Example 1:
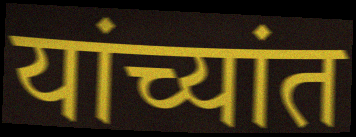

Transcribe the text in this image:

यांच्यांत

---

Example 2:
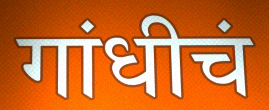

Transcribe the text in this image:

गांधीचं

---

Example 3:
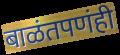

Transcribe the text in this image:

बाळंतपणंही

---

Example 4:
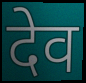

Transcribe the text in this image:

देव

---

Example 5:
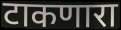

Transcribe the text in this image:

टाकणारा